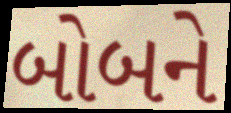
બોબને